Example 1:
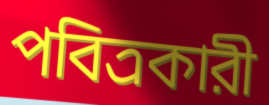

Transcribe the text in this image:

পবিত্রকারী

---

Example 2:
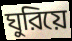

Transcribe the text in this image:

ঘুরিয়ে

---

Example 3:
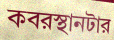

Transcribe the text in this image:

কবরস্থানটার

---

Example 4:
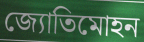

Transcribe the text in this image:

জ্যোতিমোহন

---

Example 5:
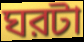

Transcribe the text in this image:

ঘরটা